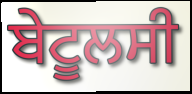
ਬੇਟੂਲਸੀ